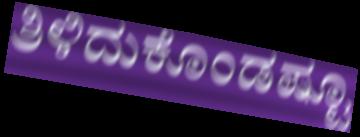
ತಿಳಿದುಕೊಂಡಷ್ಟೂ